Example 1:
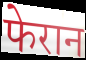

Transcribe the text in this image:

फेरान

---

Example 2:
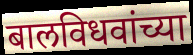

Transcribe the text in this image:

बालविधवांच्या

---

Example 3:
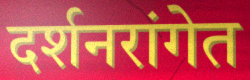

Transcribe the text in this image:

दर्शनरांगेत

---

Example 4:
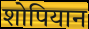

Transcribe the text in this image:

शोपियान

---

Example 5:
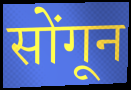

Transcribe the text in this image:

सोंगून